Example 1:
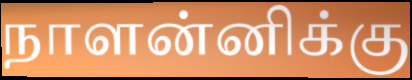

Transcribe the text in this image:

நாளன்னிக்கு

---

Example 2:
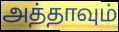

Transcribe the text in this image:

அத்தாவும்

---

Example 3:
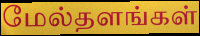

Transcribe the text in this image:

மேல்தளங்கள்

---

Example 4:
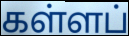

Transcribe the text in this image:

கள்ளப்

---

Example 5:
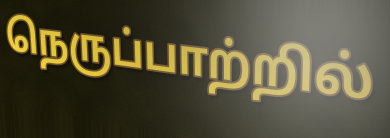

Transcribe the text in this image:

நெருப்பாற்றில்